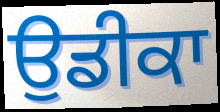
ਉਡੀਕਾ